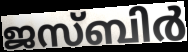
ജസ്ബിർ